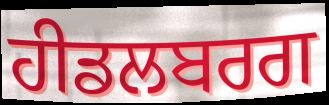
ਹੀਡਲਬਰਗ